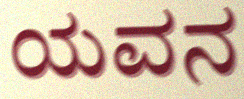
ಯವನ